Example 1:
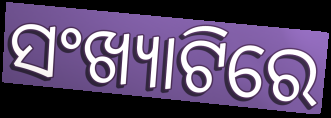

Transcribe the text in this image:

ସଂଖ୍ୟାଟିରେ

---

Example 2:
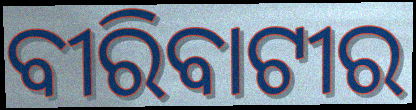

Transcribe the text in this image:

ବୀରିବାଟୀର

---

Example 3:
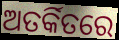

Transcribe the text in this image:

ଅତର୍କିତରେ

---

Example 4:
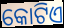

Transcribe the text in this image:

କୋଟିଏ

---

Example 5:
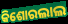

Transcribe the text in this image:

କିଶୋରଲାଲ